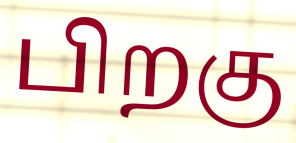
பிறகு